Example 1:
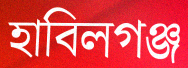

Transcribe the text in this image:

হাবিলগঞ্জ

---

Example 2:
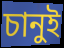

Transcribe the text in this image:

চানুই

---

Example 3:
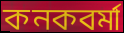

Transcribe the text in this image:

কনকবর্মা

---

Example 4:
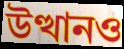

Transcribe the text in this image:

উত্থানও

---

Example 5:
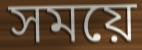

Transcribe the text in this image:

সময়ে